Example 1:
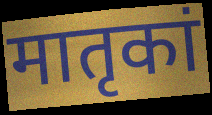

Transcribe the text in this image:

मातृकां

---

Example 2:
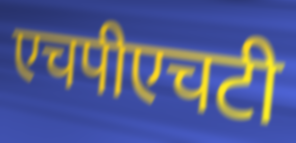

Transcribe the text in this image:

एचपीएचटी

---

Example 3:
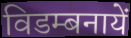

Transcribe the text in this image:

विडम्बनायें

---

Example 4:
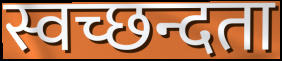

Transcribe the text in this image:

स्वच्छन्दता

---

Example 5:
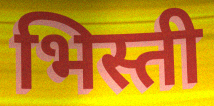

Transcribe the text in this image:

भिस्ती